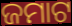
ଜମାଟ